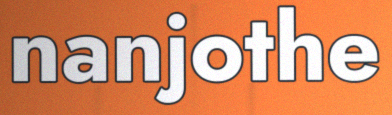
nanjothe